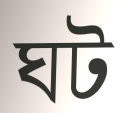
ঘট